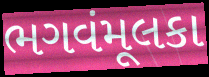
ભગવંમૂલકા